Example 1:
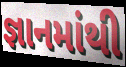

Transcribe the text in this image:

જ્ઞાનમાંથી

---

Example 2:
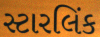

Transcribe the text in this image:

સ્ટારલિંક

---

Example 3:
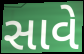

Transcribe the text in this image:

સાવે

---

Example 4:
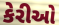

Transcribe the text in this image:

કેરીઓ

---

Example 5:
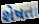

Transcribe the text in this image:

શેષતા